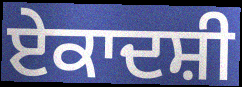
ਏਕਾਦਸ਼ੀ